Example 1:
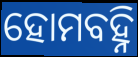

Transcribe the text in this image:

ହୋମବହ୍ନି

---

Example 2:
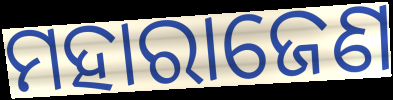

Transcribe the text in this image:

ମହାରାଜେଣ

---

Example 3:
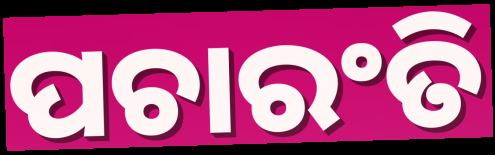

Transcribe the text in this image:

ପଚାରଂତି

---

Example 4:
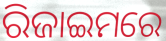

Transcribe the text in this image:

ରିଜାଇମରେ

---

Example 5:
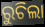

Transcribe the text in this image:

ରୁଚିଲା